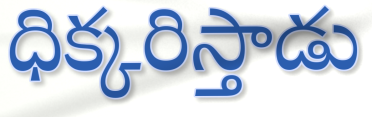
ధిక్కరిస్తాడు